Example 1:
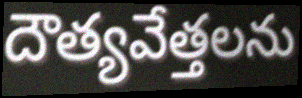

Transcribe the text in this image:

దౌత్యవేత్తలను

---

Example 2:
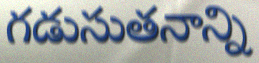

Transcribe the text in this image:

గడుసుతనాన్ని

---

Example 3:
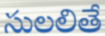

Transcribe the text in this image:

సులలితే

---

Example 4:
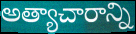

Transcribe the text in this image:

అత్యాచారాన్ని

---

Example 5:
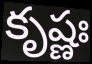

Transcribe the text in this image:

కృష్ణః